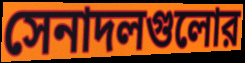
সেনাদলগুলোর